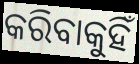
କରିବାକୁହିଁ